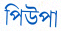
পিউপা